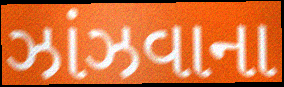
ઝાંઝવાના